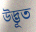
উদ্ভূত